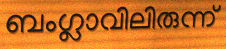
ബംഗ്ലാവിലിരുന്ന്